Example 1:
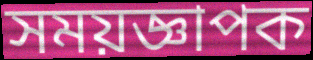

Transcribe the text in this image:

সময়জ্ঞাপক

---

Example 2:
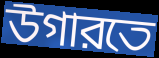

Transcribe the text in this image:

উগারতে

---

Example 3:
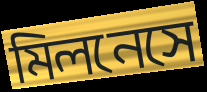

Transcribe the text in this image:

মিলনেসে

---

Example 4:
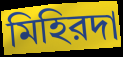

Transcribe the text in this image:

মিহিরদা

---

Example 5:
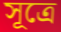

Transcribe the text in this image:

সূত্রে